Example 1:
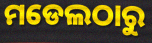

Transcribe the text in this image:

ମଡେଲଠାରୁ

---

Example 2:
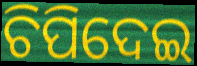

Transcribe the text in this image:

ଚିପିଦେଇ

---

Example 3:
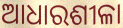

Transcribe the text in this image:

ଆଧାରଶୀଳା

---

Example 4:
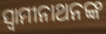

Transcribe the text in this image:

ସ୍ଵାମୀନାଥନଙ୍କ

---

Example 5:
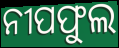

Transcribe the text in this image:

ନୀପଫୁଲ